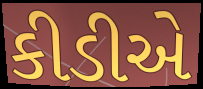
કીડીએ